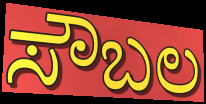
ಸೌಬಲ